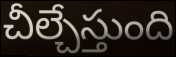
చీల్చేస్తుంది